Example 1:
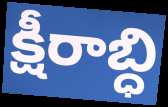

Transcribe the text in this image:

క్షీరాబ్ధి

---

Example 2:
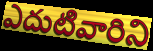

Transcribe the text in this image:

ఎదుటివారిని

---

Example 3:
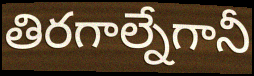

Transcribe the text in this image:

తిరగాల్నేగానీ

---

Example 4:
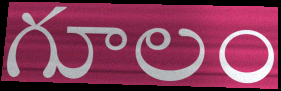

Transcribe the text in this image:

గూలం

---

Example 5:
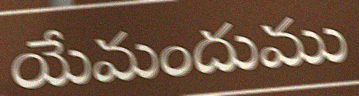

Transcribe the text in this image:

యేమందుము